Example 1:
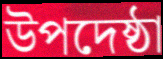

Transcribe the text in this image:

উপদেষ্ঠা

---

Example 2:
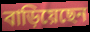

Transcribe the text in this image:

বাড়িয়েছেন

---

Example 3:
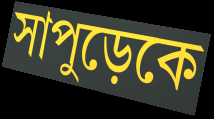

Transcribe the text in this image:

সাপুড়েকে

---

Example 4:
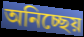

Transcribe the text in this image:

অনিচ্ছেয়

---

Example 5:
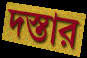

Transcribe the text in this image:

দস্তার